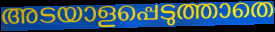
അടയാളപ്പെടുത്താതെ